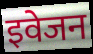
इवेजन